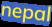
nepal